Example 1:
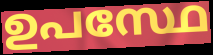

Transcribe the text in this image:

ഉപസ്ഥേ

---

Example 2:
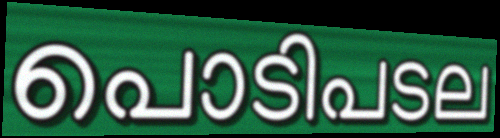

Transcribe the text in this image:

പൊടിപടല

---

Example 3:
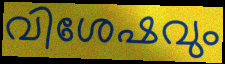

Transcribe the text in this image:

വിശേഷവും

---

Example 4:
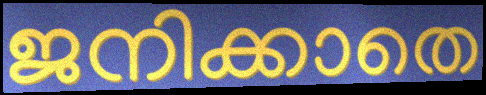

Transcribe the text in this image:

ജനിക്കാതെ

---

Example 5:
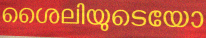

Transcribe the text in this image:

ശൈലിയുടെയോ